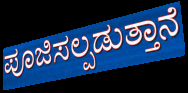
ಪೂಜಿಸಲ್ಪಡುತ್ತಾನೆ